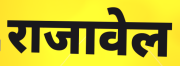
राजावेल